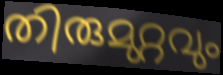
തിരുമുറ്റവും